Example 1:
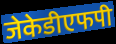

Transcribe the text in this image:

जेकेडीएफपी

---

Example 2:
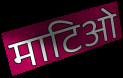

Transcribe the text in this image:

माटिओ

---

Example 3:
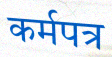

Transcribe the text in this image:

कर्मपत्र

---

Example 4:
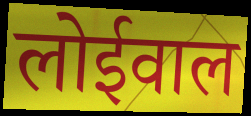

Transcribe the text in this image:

लोईवाल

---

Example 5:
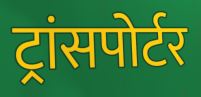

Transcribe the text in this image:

ट्रांसपोर्टर